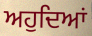
ਅਹੁਦਿਆਂ